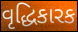
વૃદ્ધિકારક